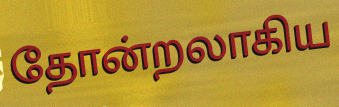
தோன்றலாகிய